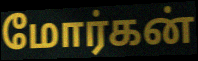
மோர்கன்